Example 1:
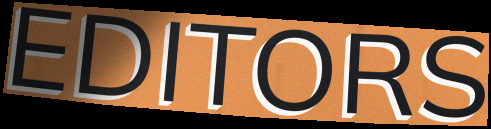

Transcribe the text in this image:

EDITORS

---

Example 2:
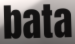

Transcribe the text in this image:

bata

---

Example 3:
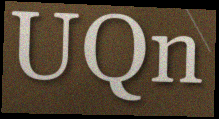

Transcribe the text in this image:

UQn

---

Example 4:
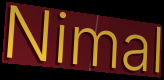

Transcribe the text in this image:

Nimal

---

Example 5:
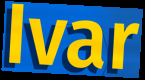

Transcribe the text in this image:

Ivar